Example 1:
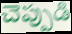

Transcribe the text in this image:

చెప్పుడి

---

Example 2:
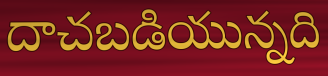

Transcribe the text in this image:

దాచబడియున్నది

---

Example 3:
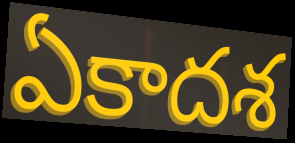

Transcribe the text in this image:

ఏకాదశ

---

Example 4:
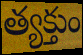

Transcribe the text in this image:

త్యక్తుం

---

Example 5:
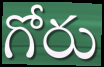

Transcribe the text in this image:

గోరు